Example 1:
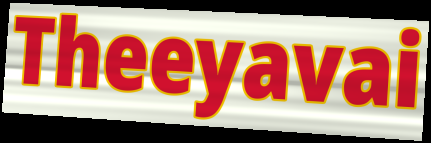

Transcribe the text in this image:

Theeyavai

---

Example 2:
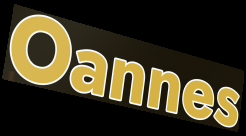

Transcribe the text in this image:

Oannes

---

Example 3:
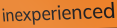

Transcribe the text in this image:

inexperienced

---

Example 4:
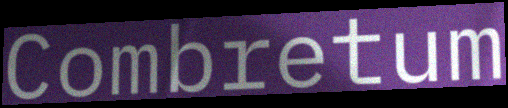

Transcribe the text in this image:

Combretum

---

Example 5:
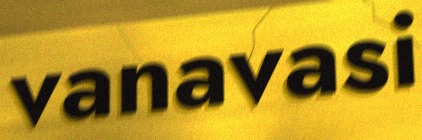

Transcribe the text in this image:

vanavasi